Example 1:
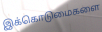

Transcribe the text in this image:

இக்கொடுமைகளை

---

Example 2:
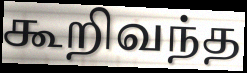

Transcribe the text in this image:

கூறிவந்த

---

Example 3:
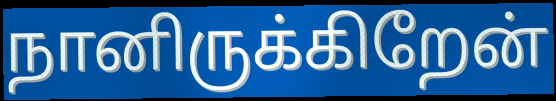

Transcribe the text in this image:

நானிருக்கிறேன்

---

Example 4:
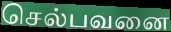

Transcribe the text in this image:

செல்பவனை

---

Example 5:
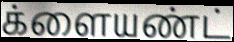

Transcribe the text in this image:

க்ளையண்ட்